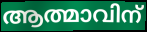
ആത്മാവിന്